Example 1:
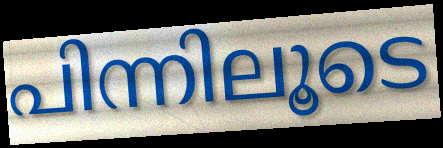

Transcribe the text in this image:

പിന്നിലൂടെ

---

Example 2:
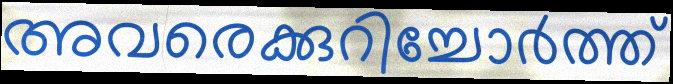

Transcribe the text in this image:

അവരെക്കുറിച്ചോർത്ത്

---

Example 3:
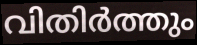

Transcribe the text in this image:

വിതിർത്തും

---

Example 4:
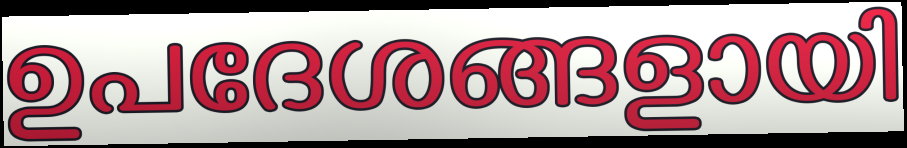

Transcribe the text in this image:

ഉപദേശങ്ങളായി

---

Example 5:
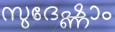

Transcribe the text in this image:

സുദേഷ്ണാം